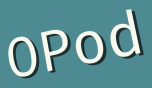
OPod